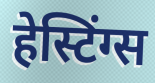
हेस्टिंग्स